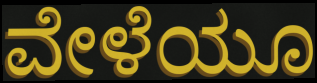
ವೇಳೆಯೂ